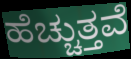
ಹೆಚ್ಚುತ್ತವೆ